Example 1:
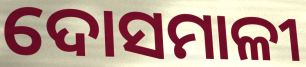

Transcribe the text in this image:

ଦୋସମାଳୀ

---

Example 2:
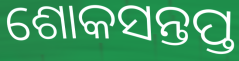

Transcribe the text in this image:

ଶୋକସନ୍ତପ୍ତ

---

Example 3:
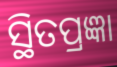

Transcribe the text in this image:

ସ୍ଥିତପ୍ରଜ୍ଞା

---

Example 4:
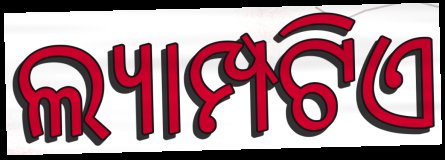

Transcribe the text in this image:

ଲ୍ୟାମ୍ପଟିଏ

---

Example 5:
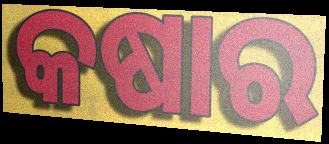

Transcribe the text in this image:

କଷାର